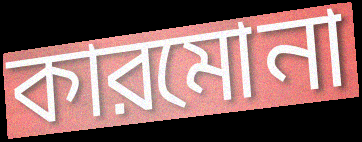
কারমোনা